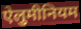
ऐलुमीनियम